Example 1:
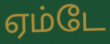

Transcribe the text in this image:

ஏம்டே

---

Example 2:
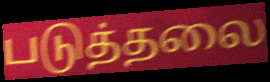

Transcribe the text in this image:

படுத்தலை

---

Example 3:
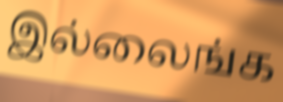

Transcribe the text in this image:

இல்லைங்க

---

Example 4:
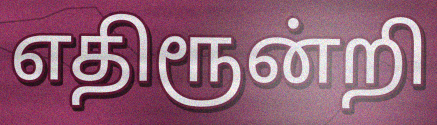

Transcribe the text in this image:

எதிரூன்றி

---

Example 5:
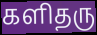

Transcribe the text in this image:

களிதரு